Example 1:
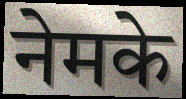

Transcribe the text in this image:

नेमके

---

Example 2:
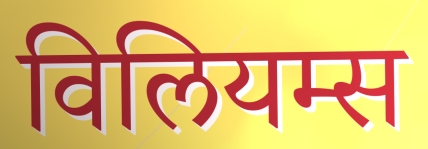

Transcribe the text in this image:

विलियम्स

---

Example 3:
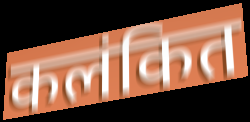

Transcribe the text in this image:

कलंकित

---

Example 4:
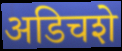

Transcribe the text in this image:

अडिचशे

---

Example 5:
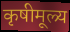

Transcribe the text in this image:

कृषीमूल्य